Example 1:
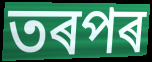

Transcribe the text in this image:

তৰপৰ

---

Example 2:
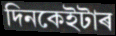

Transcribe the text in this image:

দিনকেইটাৰ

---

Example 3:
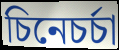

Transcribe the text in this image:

চিনেচৰ্চা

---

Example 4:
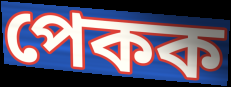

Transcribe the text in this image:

পেকক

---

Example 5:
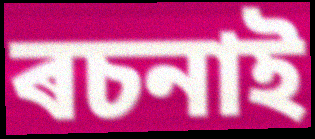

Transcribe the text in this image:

ৰচনাই